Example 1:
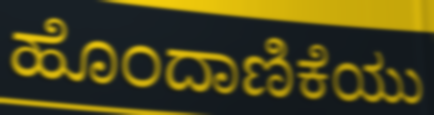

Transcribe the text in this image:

ಹೊಂದಾಣಿಕೆಯು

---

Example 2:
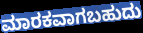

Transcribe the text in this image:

ಮಾರಕವಾಗಬಹುದು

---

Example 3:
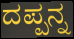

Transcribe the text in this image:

ದಪ್ಪನ್ನ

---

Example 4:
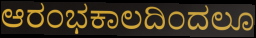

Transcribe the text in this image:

ಆರಂಭಕಾಲದಿಂದಲೂ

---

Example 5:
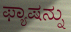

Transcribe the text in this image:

ಫ್ಯಾಷನ್ನು